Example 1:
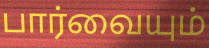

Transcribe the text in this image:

பார்வையும்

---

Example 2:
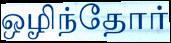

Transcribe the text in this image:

ஒழிந்தோர்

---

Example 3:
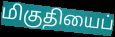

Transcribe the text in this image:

மிகுதியைப்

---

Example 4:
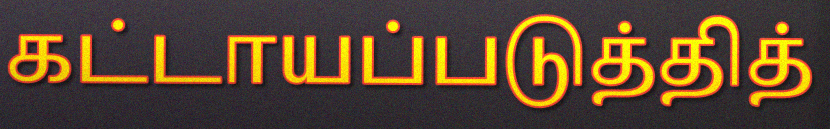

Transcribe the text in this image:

கட்டாயப்படுத்தித்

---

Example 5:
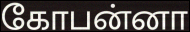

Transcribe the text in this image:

கோபன்னா